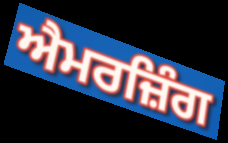
ਐਮਰਜ਼ਿੰਗ